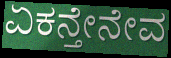
ಏಕನ್ತೇನೇವ